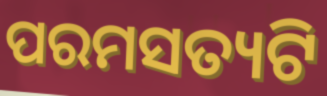
ପରମସତ୍ୟଟି